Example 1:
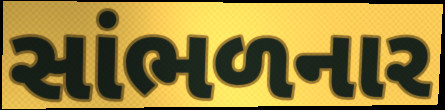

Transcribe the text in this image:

સાંભળનાર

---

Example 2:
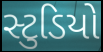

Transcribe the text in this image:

સ્ટુડિયો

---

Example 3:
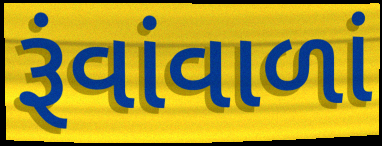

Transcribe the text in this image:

રૂંવાંવાળાં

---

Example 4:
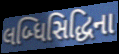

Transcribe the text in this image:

લબ્ધિસિદ્ધિના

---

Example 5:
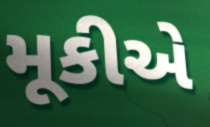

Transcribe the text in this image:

મૂકીએ